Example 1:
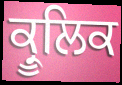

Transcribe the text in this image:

ਕ੍ਰੂਲਿਕ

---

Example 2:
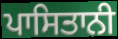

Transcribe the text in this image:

ਪਾਸਿਤਾਨੀ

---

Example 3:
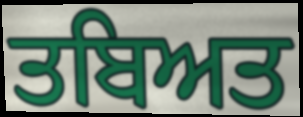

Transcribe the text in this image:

ਤਬਿਅਤ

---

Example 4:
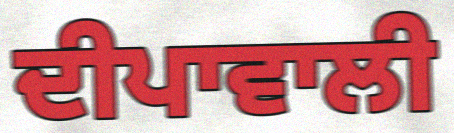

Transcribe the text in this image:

ਦੀਪਾਵਾਲੀ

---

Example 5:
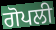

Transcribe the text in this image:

ਗੋਪਲੀ